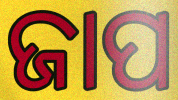
ଜାପ